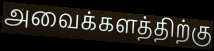
அவைக்களத்திற்கு